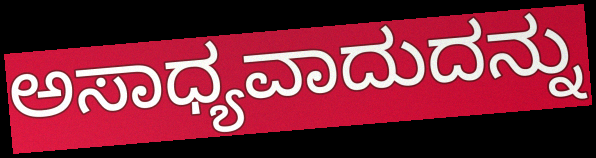
ಅಸಾಧ್ಯವಾದುದನ್ನು